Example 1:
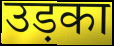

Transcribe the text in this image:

उड़का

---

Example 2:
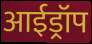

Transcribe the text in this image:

आईड्रॉप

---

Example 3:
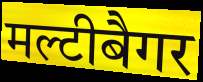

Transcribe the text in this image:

मल्‍टीबैगर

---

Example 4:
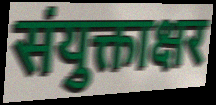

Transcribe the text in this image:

संयुक्ताक्षर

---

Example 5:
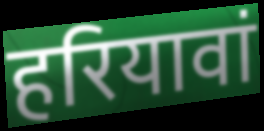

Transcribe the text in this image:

हरियावां